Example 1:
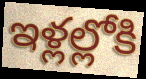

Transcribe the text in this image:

ఇళ్లల్లోకి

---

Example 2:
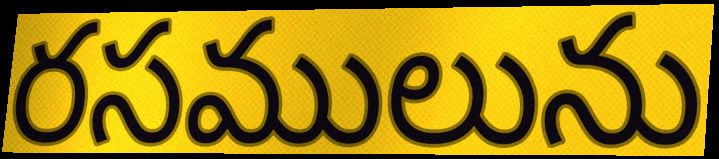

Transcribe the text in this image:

రసములును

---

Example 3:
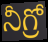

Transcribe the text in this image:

నీగ్రో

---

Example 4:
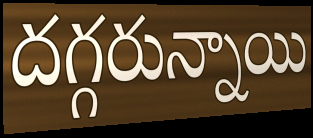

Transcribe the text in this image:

దగ్గరున్నాయి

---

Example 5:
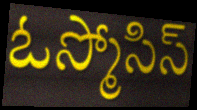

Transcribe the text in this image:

ఓస్మోసిస్